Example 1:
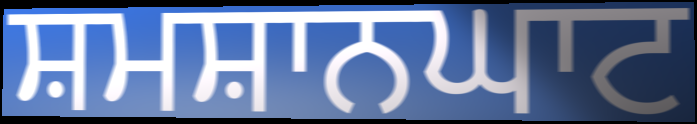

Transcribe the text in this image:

ਸ਼ਮਸ਼ਾਨਘਾਟ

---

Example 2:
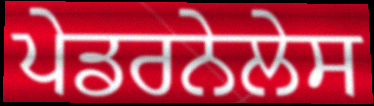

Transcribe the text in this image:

ਪੇਡਰਨੇਲੇਸ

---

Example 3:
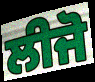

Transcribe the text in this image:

ਲੀਜੋ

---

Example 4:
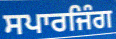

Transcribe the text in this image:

ਸਪਾਰਜਿੰਗ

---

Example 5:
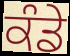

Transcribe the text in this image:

ਕੰਡੇ